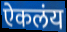
ऐकलंय